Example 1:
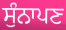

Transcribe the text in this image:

ਸੁੰਨਾਪਣ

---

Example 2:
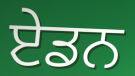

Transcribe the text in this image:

ਏਡਨ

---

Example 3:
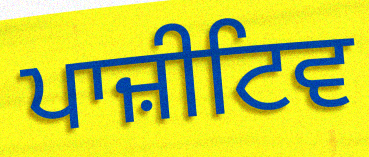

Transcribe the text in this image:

ਪਾਜ਼ੀਟਿਵ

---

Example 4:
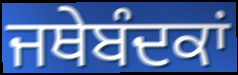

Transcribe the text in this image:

ਜਥੇਬੰਦਕਾਂ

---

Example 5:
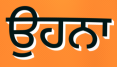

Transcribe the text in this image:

ਉਹਨਾ